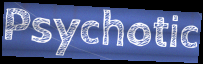
Psychotic